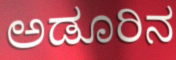
ಅಡೂರಿನ